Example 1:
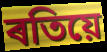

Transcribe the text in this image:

ৰতিয়ে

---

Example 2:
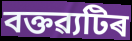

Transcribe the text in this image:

বক্তৱ্যটিৰ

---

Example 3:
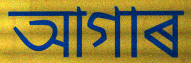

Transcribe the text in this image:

আগাৰ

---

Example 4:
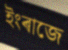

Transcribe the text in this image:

ইংৰাজে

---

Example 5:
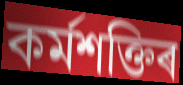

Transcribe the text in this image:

কৰ্মশক্তিৰ